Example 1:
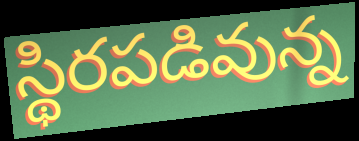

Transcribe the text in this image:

స్థిరపడివున్న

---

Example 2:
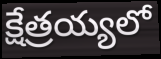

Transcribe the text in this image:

క్షేత్రయ్యలో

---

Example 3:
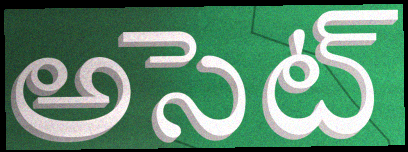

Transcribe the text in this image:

అసెట్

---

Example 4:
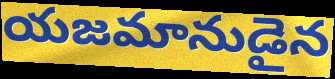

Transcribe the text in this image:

యజమానుడైన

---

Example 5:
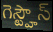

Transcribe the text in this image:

గెస్ట్హౌస్